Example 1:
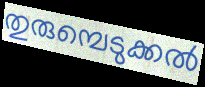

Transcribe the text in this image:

തുരുമ്പെടുക്കൽ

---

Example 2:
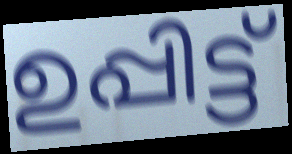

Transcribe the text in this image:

ഉപ്പിട്ട്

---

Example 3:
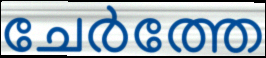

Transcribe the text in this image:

ചേർത്തേ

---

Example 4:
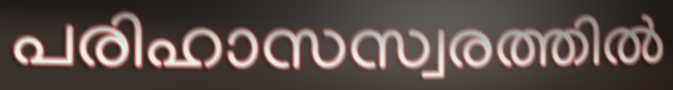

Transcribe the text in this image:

പരിഹാസസ്വരത്തിൽ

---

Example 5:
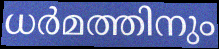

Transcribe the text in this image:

ധർമത്തിനും